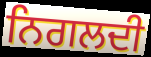
ਨਿਗਲਦੀ